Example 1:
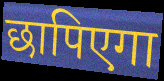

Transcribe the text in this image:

छापिएगा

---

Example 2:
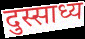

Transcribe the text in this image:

दुस्साध्य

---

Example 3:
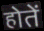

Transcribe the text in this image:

होतें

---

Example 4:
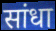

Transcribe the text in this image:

सांधा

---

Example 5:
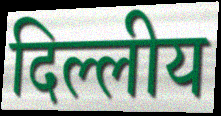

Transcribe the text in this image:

दिल्लीय